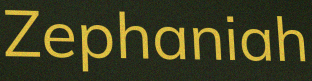
Zephaniah